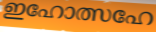
ഇഹോത്സഹേ